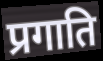
प्रगाति